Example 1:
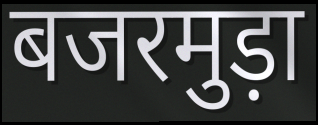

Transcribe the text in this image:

बजरमुड़ा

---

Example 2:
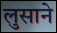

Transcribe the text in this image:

लुसाने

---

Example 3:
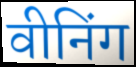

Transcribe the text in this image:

वीनिंग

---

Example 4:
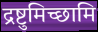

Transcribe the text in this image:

द्रष्टुमिच्छामि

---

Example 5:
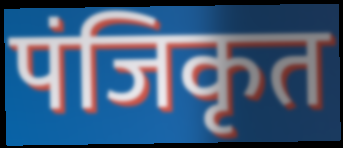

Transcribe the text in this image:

पंजिकृत